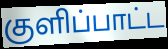
குளிப்பாட்ட